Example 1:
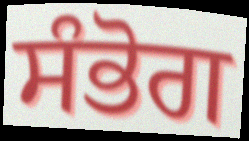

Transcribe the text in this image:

ਸੰਭੋਗ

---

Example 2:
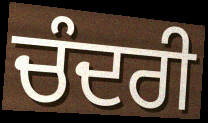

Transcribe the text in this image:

ਚੰਦਰੀ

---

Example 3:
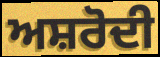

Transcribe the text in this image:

ਅਸ਼ਰੋਦੀ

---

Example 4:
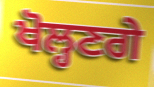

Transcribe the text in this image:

ਖੋਲ੍ਹਣਗੇ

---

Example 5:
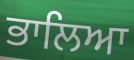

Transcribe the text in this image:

ਭਾਲਿਆ